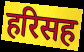
हरिसह